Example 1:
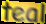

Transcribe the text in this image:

teal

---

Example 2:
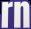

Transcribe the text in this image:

rn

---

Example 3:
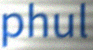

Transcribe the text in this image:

phul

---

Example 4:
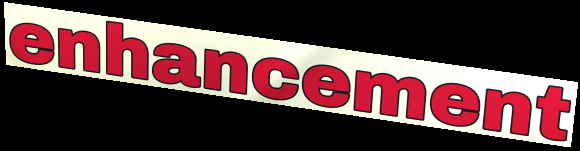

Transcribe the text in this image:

enhancement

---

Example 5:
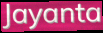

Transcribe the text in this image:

Jayanta